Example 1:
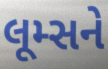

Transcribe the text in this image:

લૂમ્સને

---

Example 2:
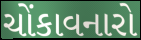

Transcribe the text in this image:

ચોંકાવનારો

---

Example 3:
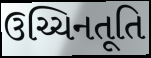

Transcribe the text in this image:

ઉચ્ચિનતૂતિ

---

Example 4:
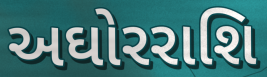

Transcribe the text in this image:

અઘોરરાશિ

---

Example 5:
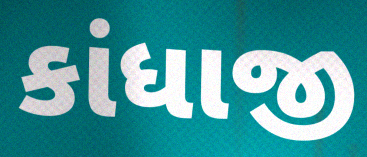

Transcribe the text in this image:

કાંધાજી